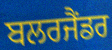
ਬਲਰਜੈਂਡਰ